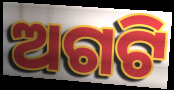
ଅଗଟି